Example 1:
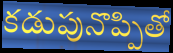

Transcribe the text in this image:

కడుపునొప్పితో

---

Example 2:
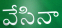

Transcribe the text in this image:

వేసినా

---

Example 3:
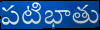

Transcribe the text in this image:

పటిభాతు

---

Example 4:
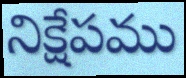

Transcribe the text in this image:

నిక్షేపము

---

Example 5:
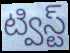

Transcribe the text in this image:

ట్విస్ట్